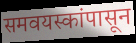
समवयस्कांपासून